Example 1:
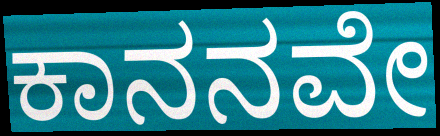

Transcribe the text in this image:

ಕಾನನವೇ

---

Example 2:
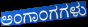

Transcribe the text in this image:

ಅಂಗಾಂಗಗಳು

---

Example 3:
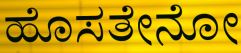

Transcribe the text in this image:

ಹೊಸತೇನೋ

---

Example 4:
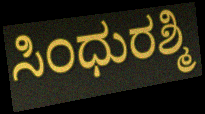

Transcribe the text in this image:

ಸಿಂಧುರಶ್ಮಿ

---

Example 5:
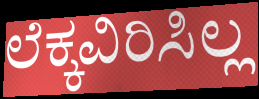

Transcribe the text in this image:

ಲೆಕ್ಕವಿರಿಸಿಲ್ಲ